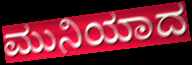
ಮುನಿಯಾದ